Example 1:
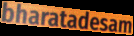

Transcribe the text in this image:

bharatadesam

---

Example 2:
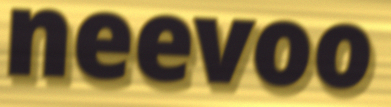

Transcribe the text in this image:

neevoo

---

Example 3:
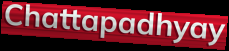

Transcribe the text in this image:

Chattapadhyay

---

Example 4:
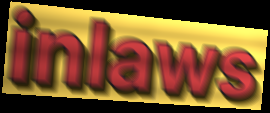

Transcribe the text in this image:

inlaws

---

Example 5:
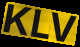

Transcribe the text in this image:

KLV